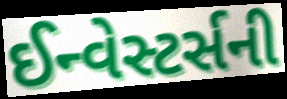
ઈન્વેસ્ટર્સની